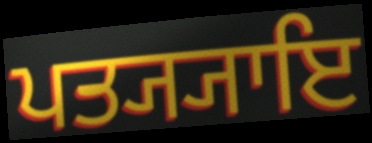
ਪਤ੍ਯ੍ਯਾਇ